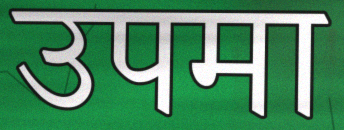
उपमा